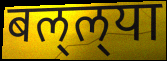
बल्ल्या